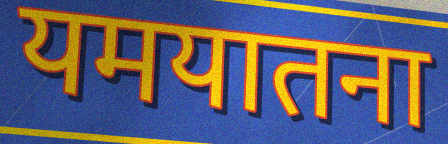
यमयातना